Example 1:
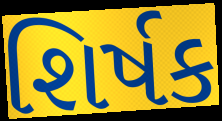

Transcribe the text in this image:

શિર્ષક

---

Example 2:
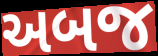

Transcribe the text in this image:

અબજ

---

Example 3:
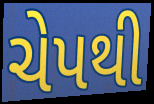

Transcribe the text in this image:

ચેપથી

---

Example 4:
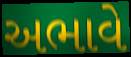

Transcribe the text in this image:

અભાવે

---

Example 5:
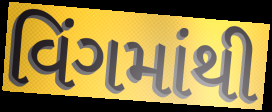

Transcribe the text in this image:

વિંગમાંથી